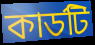
কার্ডটি